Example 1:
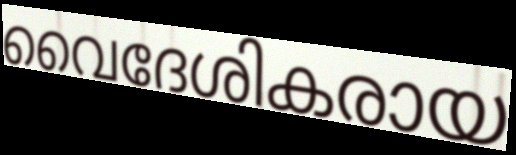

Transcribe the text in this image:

വൈദേശികരായ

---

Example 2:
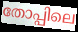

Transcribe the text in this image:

തോപ്പിലെ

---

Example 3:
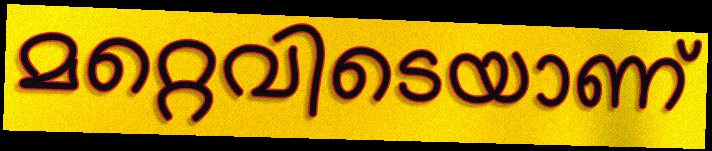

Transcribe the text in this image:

മറ്റെവിടെയാണ്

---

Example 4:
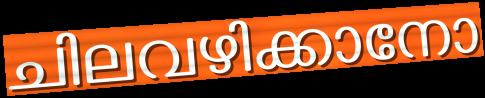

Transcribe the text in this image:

ചിലവഴിക്കാനോ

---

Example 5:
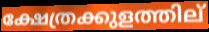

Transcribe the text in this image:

ക്ഷേത്രക്കുളത്തില്